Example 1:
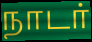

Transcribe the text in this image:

நாடர்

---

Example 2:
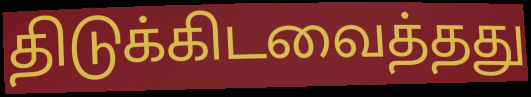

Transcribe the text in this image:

திடுக்கிடவைத்தது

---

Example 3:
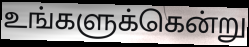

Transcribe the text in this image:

உங்களுக்கென்று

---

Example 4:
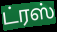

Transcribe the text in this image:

ட்ரஸ்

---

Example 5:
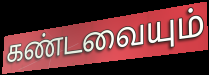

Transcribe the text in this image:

கண்டவையும்